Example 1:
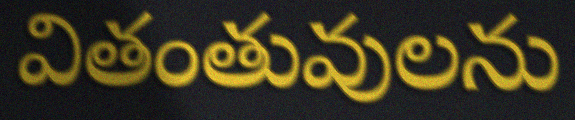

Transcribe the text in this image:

వితంతువులను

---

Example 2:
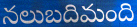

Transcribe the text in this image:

నలుబదిమంది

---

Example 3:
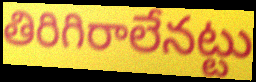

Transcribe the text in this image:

తిరిగిరాలేనట్టు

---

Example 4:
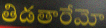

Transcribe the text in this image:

తిడతారేమో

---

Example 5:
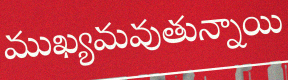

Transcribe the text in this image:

ముఖ్యమవుతున్నాయి